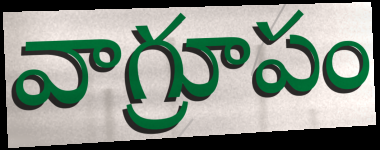
వాగ్రూపం